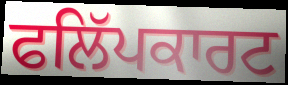
ਫਲਿੱਪਕਾਰਟ